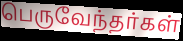
பெருவேந்தர்கள்